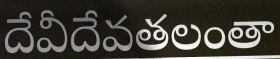
దేవీదేవతలంతా